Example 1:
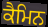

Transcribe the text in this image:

ਕੈਮਿਨ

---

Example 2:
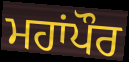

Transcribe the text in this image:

ਮਹਾਂਪੌਰ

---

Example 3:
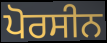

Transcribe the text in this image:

ਪੋਰਸੀਨ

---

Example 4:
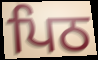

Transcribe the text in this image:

ਪਿਠ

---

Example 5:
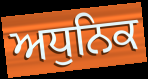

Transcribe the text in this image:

ਅਧੁਨਿਕ